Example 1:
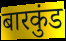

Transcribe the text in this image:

बारकुंड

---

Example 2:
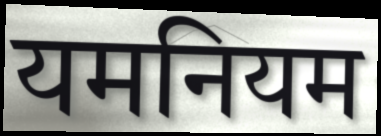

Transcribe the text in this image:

यमनियम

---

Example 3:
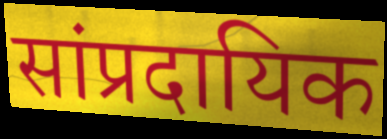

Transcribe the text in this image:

सांप्रदायिक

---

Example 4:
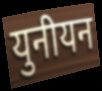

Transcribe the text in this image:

युनीयन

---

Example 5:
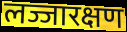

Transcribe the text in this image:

लज्जारक्षण